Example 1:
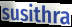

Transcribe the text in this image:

susithra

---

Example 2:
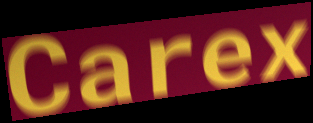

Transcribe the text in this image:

Carex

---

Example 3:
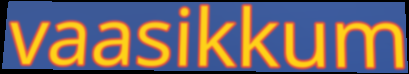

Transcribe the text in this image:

vaasikkum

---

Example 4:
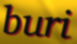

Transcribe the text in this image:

buri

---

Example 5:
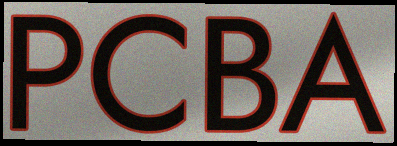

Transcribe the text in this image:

PCBA